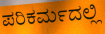
ಪರಿಕರ್ಮದಲ್ಲಿ